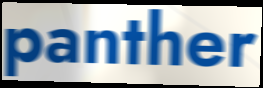
panther